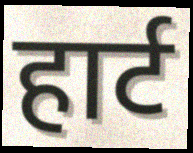
हार्ट